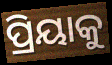
ପ୍ରିୟାକୁ